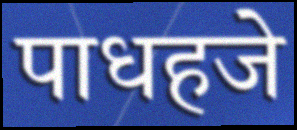
पाधहजे